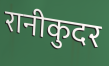
रानीकुदर